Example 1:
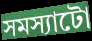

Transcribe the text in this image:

সমস্যাটো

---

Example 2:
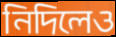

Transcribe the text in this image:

নিদিলেও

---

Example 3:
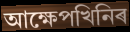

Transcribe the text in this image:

আক্ষেপখিনিৰ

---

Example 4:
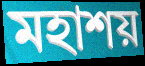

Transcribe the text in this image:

মহাশয়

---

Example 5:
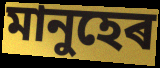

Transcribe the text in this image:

মানুহেৰ